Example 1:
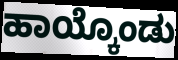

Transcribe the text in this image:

ಹಾಯ್ಕೊಂಡು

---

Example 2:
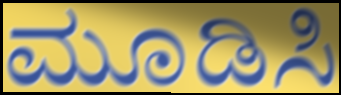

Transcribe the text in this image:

ಮೂಡಿಸಿ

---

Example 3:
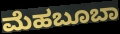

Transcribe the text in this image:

ಮೆಹಬೂಬಾ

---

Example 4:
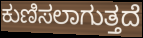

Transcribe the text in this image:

ಕುಣಿಸಲಾಗುತ್ತದೆ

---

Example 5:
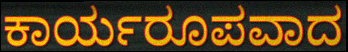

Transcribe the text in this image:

ಕಾರ್ಯರೂಪವಾದ